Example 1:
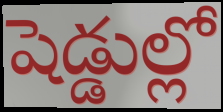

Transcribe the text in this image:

షెడ్డుల్లో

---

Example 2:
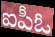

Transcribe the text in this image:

ఐపీఓ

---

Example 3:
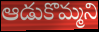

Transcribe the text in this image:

ఆడుకొమ్మని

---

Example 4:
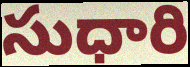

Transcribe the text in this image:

సుధారి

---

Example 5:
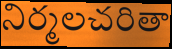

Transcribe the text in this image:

నిర్మలచరితా